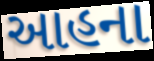
આહના